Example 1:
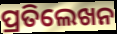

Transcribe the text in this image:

ପ୍ରତିଲେଖନ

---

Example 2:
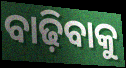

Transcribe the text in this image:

ବାଢ଼ିବାକୁ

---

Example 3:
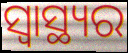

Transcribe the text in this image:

ସ୍ୱାସ୍ଥ୍ୟର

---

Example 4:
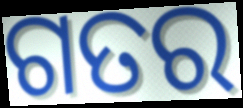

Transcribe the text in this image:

ଗତର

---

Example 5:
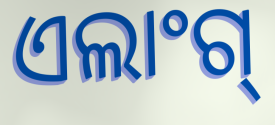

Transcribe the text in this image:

ଏଲାଂଗ୍